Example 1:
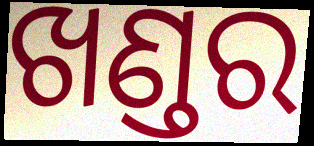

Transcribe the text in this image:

ଖଣ୍ଡର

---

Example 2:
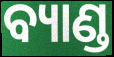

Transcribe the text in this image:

ବ୍ୟାଣ୍ଡ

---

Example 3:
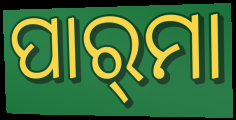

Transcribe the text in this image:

ପାର୍‌ମା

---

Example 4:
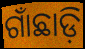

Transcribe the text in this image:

ଗାଁଛାଡ଼ି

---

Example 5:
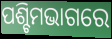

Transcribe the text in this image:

ପଶ୍ଚିମଭାଗରେ